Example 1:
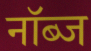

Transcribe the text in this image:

नॉब्ज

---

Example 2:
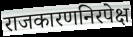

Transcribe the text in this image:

राजकारणनिरपेक्ष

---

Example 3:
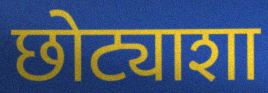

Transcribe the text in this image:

छोट्याशा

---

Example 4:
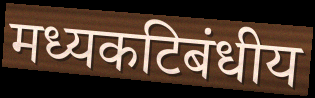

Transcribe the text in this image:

मध्यकटिबंधीय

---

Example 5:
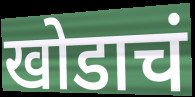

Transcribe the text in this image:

खोडाचं